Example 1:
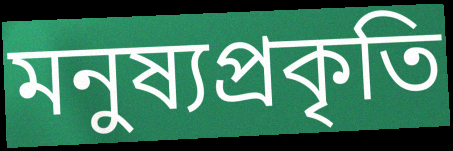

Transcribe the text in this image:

মনুষ্যপ্রকৃতি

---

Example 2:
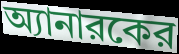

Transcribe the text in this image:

অ্যানারকের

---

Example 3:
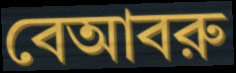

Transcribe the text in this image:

বেআবরু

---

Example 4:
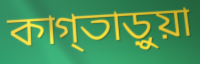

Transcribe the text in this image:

কাগ্‌তাড়ুয়া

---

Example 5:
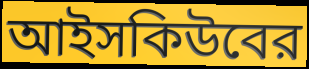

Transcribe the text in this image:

আইসকিউবের